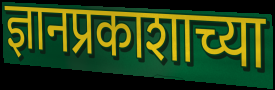
ज्ञानप्रकाशाच्या